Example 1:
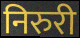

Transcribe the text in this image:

निरुरी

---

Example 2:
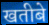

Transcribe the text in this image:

खतीबे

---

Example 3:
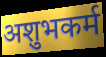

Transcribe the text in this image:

अशुभकर्म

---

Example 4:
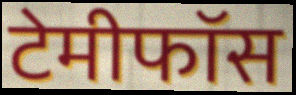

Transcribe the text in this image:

टेमीफॉस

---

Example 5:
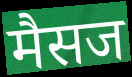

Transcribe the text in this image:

मैसज